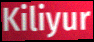
Kiliyur